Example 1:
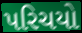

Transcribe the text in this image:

પરિચયો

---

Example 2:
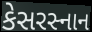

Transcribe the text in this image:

કેસરસ્નાન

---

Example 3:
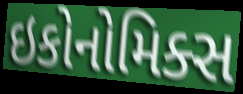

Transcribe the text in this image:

ઇકોનોમિક્સ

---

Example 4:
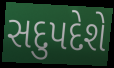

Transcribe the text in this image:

સદુપદેશે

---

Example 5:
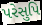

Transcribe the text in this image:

પરેસુપિ